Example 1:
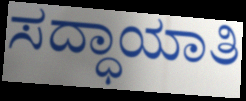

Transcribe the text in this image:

ಸದ್ಧಾಯಾತಿ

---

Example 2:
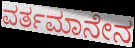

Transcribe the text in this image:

ವರ್ತಮಾನೇನ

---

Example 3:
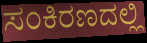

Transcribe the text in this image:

ಸಂಕಿರಣದಲ್ಲಿ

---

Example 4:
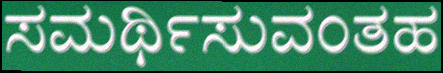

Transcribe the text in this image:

ಸಮರ್ಥಿಸುವಂತಹ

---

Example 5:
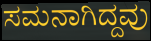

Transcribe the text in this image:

ಸಮನಾಗಿದ್ದವು